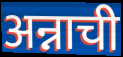
अन्नाची